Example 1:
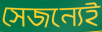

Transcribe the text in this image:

সেজন্যেই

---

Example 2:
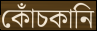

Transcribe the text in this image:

কোঁচকানি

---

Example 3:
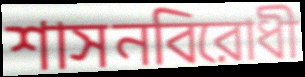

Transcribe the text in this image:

শাসনবিরোধী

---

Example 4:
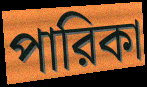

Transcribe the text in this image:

পারিকা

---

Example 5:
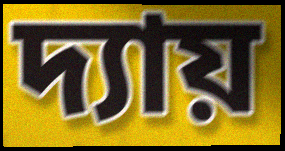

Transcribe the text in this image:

দ্যায়